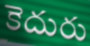
కెదురు